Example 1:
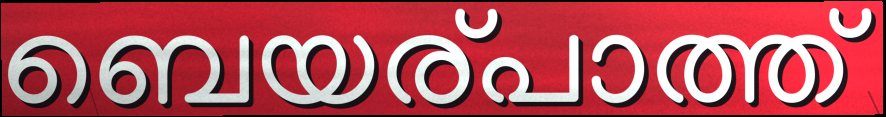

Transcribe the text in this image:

ബെയര്പാത്ത്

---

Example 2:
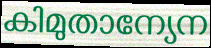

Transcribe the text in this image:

കിമുതാന്യേന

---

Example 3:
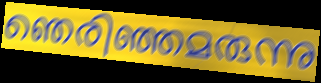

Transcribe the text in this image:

ഞെരിഞ്ഞമരുന്നു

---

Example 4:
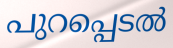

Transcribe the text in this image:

പുറപ്പെടൽ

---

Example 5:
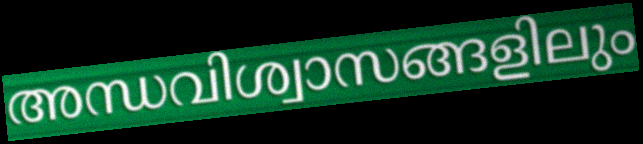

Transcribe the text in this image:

അന്ധവിശ്വാസങ്ങളിലും